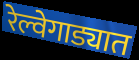
रेल्वेगाड्यात